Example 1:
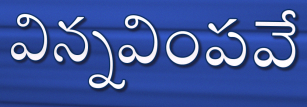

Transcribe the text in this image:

విన్నవింపవే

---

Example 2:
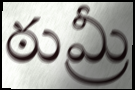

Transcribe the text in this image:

ఠుమ్రీ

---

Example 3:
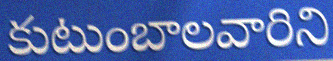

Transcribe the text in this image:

కుటుంబాలవారిని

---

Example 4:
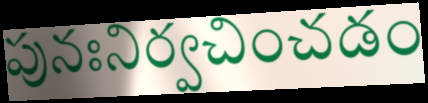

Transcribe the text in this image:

పునఃనిర్వచించడం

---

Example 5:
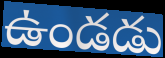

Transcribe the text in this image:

ఉండడు